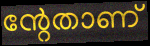
ന്റേതാണ്